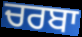
ਚਰਬਾ